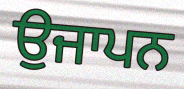
ਉਜਾਪਨ